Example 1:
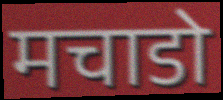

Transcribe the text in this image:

मचाडो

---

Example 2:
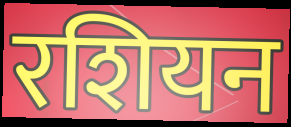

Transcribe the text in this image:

रशियन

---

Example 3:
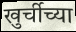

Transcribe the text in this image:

खुर्चीच्या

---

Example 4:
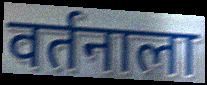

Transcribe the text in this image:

वर्तनाला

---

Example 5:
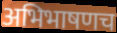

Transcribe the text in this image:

अभिभाषणच